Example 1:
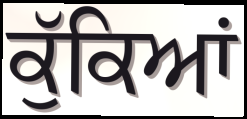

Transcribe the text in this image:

ਕੁੱਕਿਆਂ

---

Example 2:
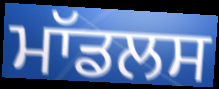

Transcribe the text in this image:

ਮਾੱਡਲਸ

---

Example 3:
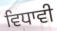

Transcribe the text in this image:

ਵਿਧਾਵੀ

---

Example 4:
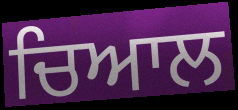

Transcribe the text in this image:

ਚਿਆਲ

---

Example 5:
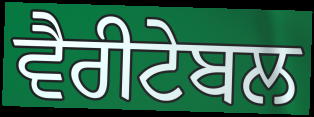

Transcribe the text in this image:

ਵੈਰੀਟੇਬਲ